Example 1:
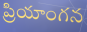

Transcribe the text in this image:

ప్రియాంగన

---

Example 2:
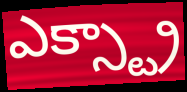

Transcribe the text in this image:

ఎక్స్ట్రా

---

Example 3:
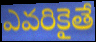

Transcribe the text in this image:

ఎవరికైతే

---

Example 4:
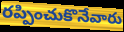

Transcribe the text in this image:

రప్పించుకొనేవారు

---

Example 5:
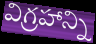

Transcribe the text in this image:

విగ్రహాన్ని